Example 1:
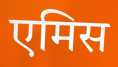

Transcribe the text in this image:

एमिस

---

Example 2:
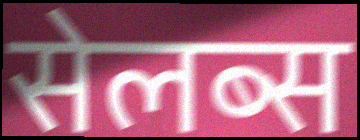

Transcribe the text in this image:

सेलब्स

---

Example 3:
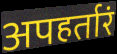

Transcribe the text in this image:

अपहर्तारं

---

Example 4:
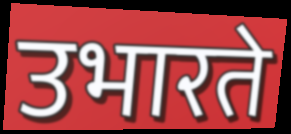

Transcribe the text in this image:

उभारते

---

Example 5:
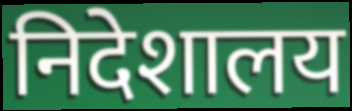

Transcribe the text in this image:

निदेशालय